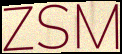
ZSM